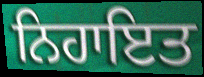
ਨਿਹਾਇਤ